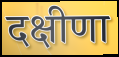
दक्षीणा